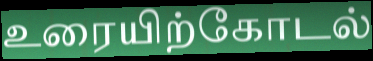
உரையிற்கோடல்